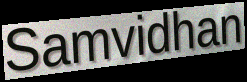
Samvidhan